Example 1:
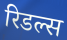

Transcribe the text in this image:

रिडल्स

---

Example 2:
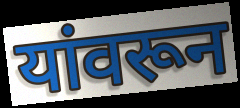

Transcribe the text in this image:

यांवरून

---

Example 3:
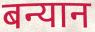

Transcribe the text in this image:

बन्यान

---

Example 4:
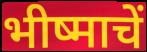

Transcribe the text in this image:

भीष्माचें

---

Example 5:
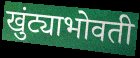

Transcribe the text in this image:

खुंट्याभोवती